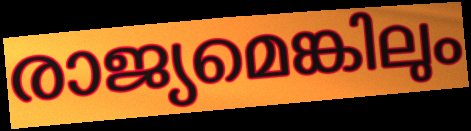
രാജ്യമെങ്കിലും